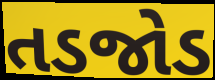
તડજોડ